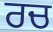
ਰਚ